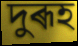
দুৰূহ